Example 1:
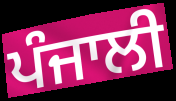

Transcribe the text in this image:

ਪੰਜਾਲੀ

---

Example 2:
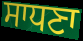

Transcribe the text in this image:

ਸਾਧਣਾ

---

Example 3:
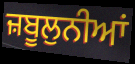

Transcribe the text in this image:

ਜ਼ਬੂਲੁਨੀਆਂ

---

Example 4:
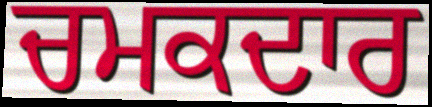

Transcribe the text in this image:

ਚਮਕਦਾਰ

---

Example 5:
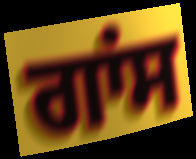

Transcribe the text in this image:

ਗਾਂਸ